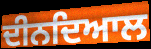
ਦੀਨਦਿਆਲ